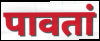
पावतां